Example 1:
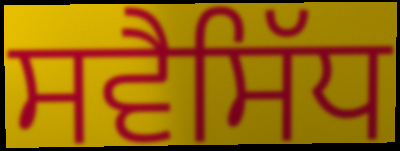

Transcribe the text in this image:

ਸਵੈਸਿੱਧ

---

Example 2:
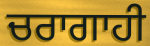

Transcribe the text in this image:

ਚਰਾਗਾਹੀ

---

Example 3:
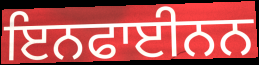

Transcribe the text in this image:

ਇਨਫਾਈਨਨ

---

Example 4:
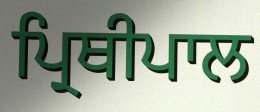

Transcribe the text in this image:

ਪ੍ਰਿਥੀਪਾਲ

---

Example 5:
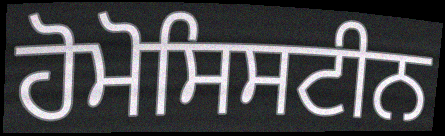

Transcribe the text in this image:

ਹੋਮੋਸਿਸਟੀਨ